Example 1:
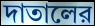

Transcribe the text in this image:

দাতালের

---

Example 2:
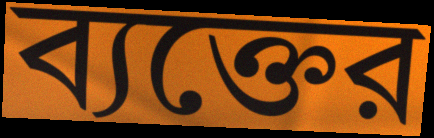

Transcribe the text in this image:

ব্যক্তের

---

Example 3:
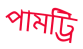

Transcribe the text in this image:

পামট্রি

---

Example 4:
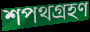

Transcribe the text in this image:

শপথগ্রহণ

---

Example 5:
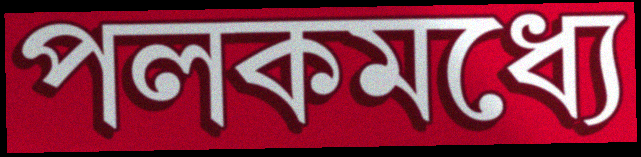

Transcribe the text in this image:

পলকমধ্যে